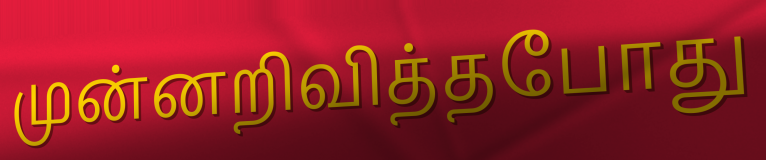
முன்னறிவித்தபோது